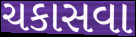
ચકાસવા